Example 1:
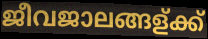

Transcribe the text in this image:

ജീവജാലങ്ങള്ക്ക്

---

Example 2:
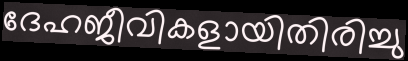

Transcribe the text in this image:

ദേഹജീവികളായിതിരിച്ചു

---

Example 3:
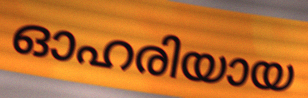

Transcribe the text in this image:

ഓഹരിയായ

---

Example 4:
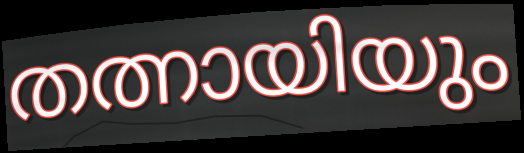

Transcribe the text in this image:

തത്നായിയും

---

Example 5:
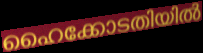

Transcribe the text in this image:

ഹൈക്കോടതിയിൽ